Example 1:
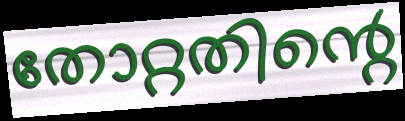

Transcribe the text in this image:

തോറ്റതിന്റെ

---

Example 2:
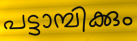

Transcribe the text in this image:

പട്ടാമ്പിക്കും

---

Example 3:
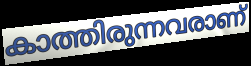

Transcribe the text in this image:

കാത്തിരുന്നവരാണ്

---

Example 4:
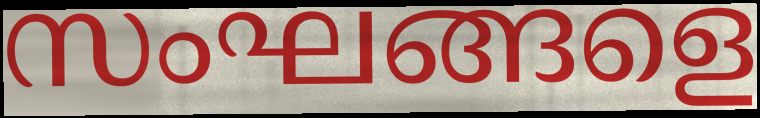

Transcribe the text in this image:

സംഘങ്ങളെ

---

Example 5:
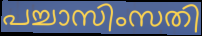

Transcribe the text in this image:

പച്ചാസിംസതി